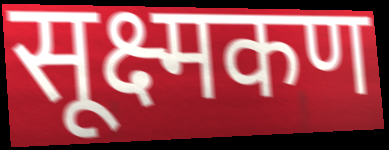
सूक्ष्मकण